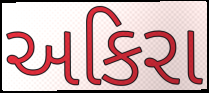
અકિરા